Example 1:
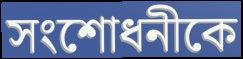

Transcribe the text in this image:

সংশোধনীকে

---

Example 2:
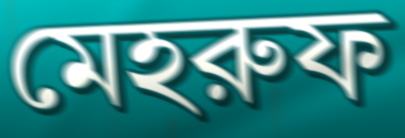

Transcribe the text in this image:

মেহরুফ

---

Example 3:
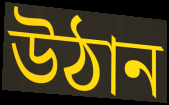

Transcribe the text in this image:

উঠান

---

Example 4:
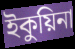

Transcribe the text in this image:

ইকুয়িনা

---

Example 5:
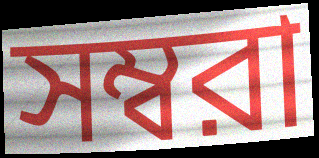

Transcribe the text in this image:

সম্বরা